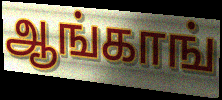
ஆங்காங்